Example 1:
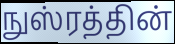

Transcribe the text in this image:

நுஸ்ரத்தின்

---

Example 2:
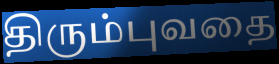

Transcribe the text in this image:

திரும்புவதை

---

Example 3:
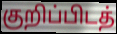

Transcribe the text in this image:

குறிப்பிடத்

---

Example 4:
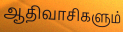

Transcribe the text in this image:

ஆதிவாசிகளும்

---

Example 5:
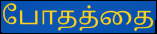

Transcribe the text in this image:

போதத்தை